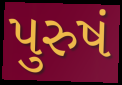
પુરુષં